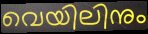
വെയിലിനും